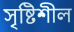
সৃষ্টিশীল